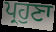
ਪ੍ਰਹੁਣਾ